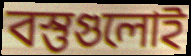
বস্তুগুলোই